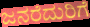
ಜನರೆದುರಿಗೆ